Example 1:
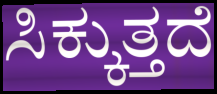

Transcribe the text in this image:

ಸಿಕ್ಕುತ್ತದೆ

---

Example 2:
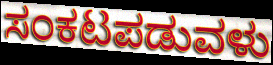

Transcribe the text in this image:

ಸಂಕಟಪಡುವಳು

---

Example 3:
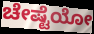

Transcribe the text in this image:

ಚೇಷ್ಟೆಯೋ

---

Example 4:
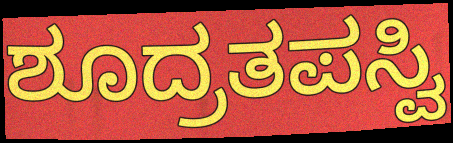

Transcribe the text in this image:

ಶೂದ್ರತಪಸ್ವಿ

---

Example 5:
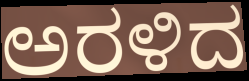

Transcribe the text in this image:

ಅರಳಿದ